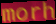
morh